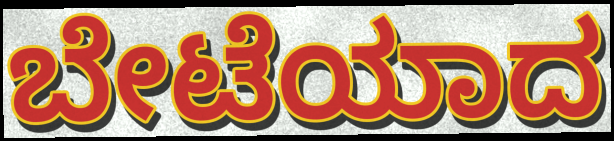
ಬೇಟೆಯಾದ